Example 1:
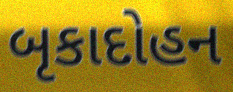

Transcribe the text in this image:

બૃકાદોહન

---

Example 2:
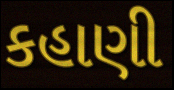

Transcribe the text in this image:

કહાણી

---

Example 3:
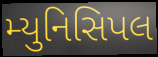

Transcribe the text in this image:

મ્યુનિસિપલ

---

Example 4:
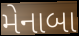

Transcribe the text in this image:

મેનાબા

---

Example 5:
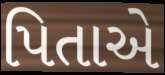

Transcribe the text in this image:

પિતાએ